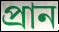
প্রান